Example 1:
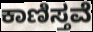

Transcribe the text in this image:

ಕಾಣಿಸ್ತವೆ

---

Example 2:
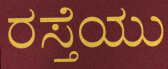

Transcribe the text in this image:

ರಸ್ತೆಯು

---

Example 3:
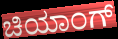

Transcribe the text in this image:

ಚಿಯಾಂಗ್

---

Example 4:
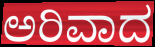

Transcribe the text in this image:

ಅರಿವಾದ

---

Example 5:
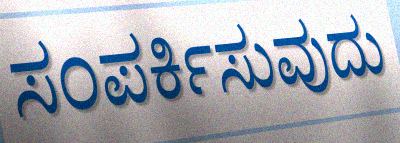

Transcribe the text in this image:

ಸಂಪರ್ಕಿಸುವುದು